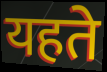
यहते